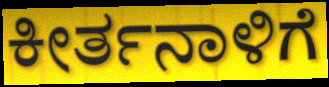
ಕೀರ್ತನಾಳಿಗೆ